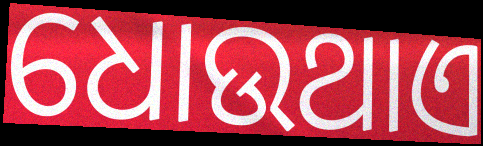
ଧୋଉଥାଏ